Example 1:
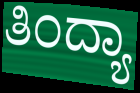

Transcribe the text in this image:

ತಿಂದ್ಯಾ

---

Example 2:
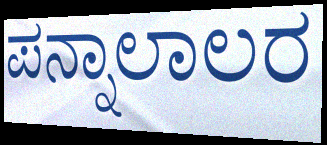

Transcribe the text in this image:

ಪನ್ನಾಲಾಲರ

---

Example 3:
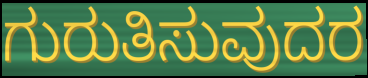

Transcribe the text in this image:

ಗುರುತಿಸುವುದರ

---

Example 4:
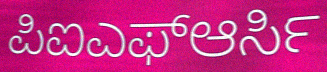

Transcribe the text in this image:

ಪಿಐಎಫ್ಆರ್ಸಿ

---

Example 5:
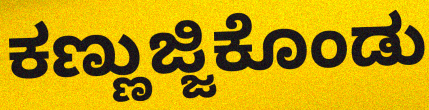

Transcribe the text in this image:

ಕಣ್ಣುಜ್ಜಿಕೊಂಡು